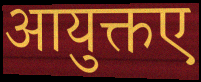
आयुक्तए